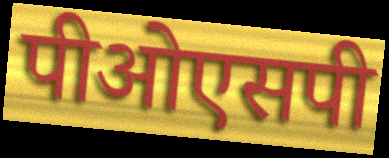
पीओएसपी